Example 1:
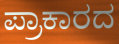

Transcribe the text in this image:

ಪ್ರಾಕಾರದ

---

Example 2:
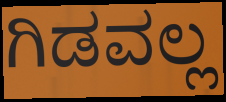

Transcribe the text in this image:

ಗಿಡವಲ್ಲ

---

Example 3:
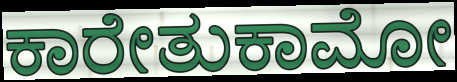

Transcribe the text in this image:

ಕಾರೇತುಕಾಮೋ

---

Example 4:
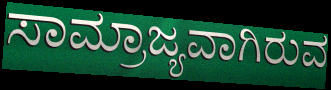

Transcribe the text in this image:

ಸಾಮ್ರಾಜ್ಯವಾಗಿರುವ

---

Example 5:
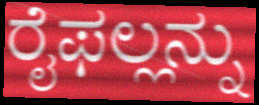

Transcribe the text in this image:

ರೈಫಲ್ಲನ್ನು